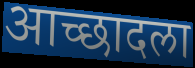
आच्छादला